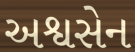
અશ્વસેન